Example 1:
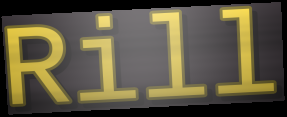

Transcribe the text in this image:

Rill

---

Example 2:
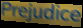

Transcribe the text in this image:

Prejudice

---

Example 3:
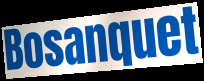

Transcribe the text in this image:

Bosanquet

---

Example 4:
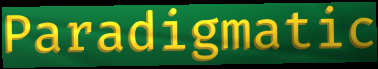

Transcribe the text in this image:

Paradigmatic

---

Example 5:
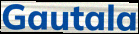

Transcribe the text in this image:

Gautala